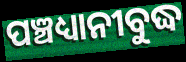
ପଞ୍ଚଧ୍ୟାନୀବୁଦ୍ଧ